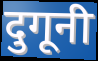
दुगूनी